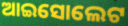
ଆଇସୋଲେଟ